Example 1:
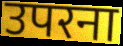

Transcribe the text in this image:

उपरना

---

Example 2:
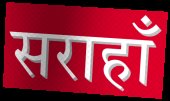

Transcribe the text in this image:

सराहाँ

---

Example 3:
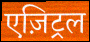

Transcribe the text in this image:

एज़िट्रल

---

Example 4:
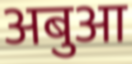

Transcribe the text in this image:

अबुआ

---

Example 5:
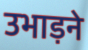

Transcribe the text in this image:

उभाड़ने